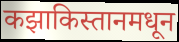
कझाकिस्तानमधून